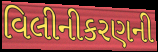
વિલીનીકરણની